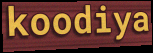
koodiya